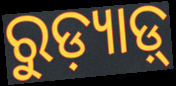
ରୁଡ଼୍ୟାଡ଼୍